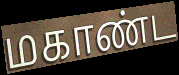
மகாண்ட